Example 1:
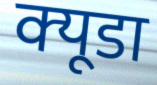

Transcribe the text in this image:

क्यूडा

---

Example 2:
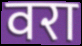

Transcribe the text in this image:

वरा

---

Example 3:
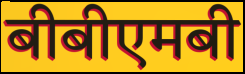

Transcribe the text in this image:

बीबीएमबी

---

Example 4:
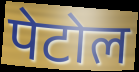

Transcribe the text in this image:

पेटोल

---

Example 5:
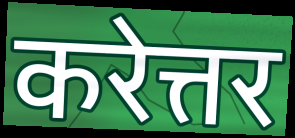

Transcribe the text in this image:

करेत्तर